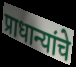
प्राधान्यांचे